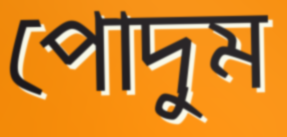
পোদুম